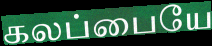
கலப்பையே